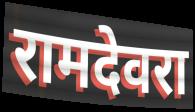
रामदेवरा